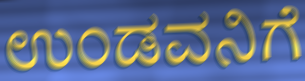
ಉಂಡವನಿಗೆ